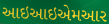
આઇઆઇએમઆર